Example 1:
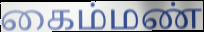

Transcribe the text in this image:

கைம்மண்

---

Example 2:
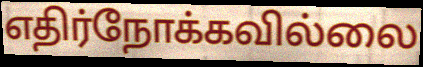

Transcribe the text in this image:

எதிர்நோக்கவில்லை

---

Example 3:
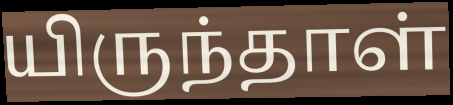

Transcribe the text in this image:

யிருந்தாள்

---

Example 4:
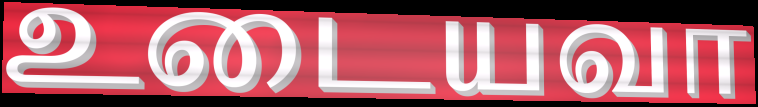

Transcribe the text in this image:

உடையவா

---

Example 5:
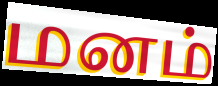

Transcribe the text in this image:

மனம்